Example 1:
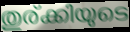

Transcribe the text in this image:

തുര്ക്കിയുടെ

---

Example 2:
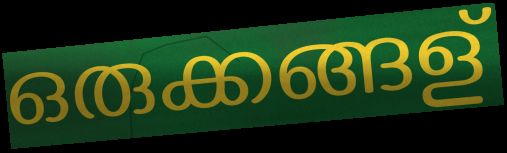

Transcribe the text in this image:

ഒരുക്കങ്ങള്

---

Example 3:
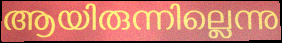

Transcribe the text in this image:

ആയിരുന്നില്ലെന്നു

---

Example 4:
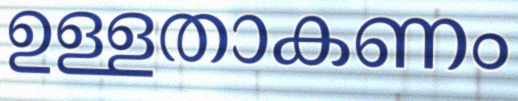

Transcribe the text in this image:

ഉള്ളതാകണം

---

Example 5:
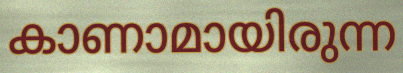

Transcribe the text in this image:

കാണാമായിരുന്ന